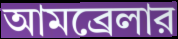
আমব্রেলার